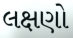
લક્ષણો